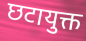
छटायुक्त